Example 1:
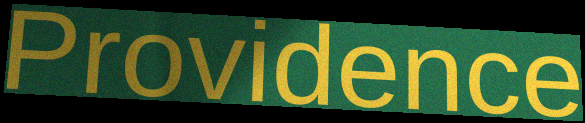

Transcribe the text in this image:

Providence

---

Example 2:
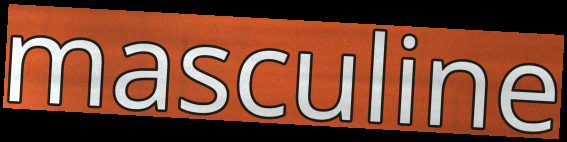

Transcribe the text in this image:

masculine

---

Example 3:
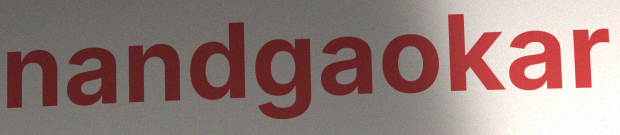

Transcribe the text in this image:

nandgaokar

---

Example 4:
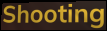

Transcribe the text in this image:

Shooting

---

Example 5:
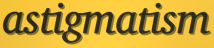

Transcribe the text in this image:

astigmatism